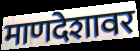
माणदेशावर